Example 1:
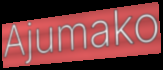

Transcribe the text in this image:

Ajumako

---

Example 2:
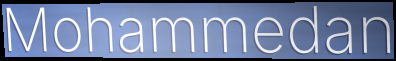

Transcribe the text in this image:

Mohammedan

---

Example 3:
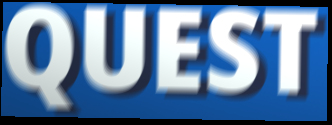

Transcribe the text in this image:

QUEST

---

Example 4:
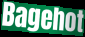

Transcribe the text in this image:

Bagehot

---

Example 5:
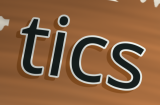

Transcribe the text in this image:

tics